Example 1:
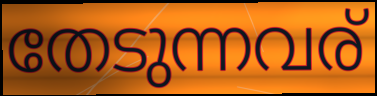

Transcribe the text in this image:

തേടുന്നവര്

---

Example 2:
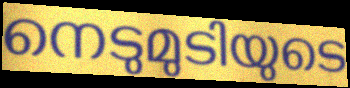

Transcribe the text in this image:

നെടുമുടിയുടെ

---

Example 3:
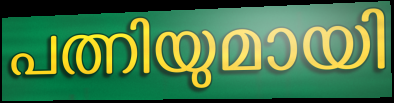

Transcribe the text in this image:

പത്നിയുമായി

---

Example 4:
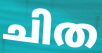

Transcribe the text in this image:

ചിത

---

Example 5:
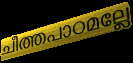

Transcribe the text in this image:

ചീത്തപാഠമല്ലേ